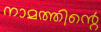
നാമത്തിന്റെ